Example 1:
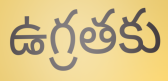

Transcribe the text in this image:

ఉగ్రతకు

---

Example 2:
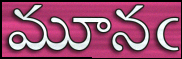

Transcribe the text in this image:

మూనఁ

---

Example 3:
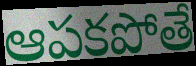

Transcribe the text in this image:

ఆపకపోతే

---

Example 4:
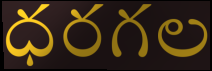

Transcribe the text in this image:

ధరగల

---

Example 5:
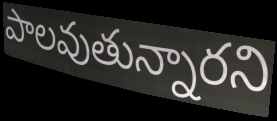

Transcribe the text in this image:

పాలవుతున్నారని